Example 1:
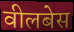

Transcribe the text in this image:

वीलबेस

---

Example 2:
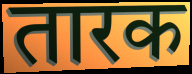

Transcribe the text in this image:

तारक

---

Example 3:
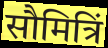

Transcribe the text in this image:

सौमित्रिं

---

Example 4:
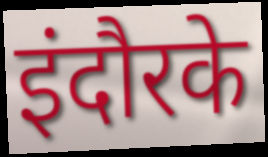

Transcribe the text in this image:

इंदौरके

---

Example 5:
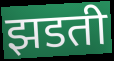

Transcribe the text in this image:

झडती